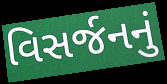
વિસર્જનનું